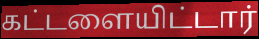
கட்டளையிட்டார்